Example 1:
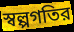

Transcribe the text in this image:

স্বল্পগতির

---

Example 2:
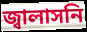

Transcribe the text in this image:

জ্বালাসনি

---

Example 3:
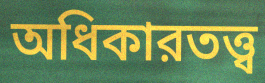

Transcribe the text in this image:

অধিকারতত্ত্ব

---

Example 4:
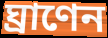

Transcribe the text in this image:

ঘ্রাণেন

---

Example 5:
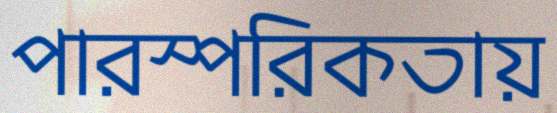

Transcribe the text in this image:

পারস্পরিকতায়